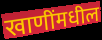
खाणींमधील